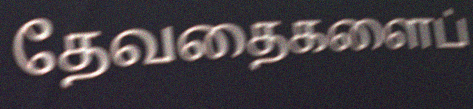
தேவதைகளைப்